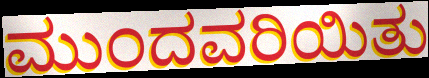
ಮುಂದವರಿಯಿತು